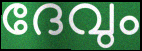
ദേവും